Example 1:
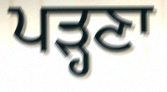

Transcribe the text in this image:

ਪੜ੍ਹਣਾ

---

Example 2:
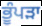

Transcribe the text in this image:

ਭੂੰਪੜਾ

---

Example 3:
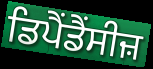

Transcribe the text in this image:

ਡਿਪੈਂਡੈਂਸੀਜ਼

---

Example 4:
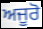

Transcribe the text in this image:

ਅਜੂਰੋ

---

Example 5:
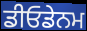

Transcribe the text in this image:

ਡੀਓਡੇਨਮ